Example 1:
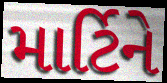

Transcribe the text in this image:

માર્ટિને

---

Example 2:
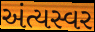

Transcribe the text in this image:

અંત્યસ્વર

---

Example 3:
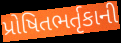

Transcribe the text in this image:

પ્રોષિતભર્તૃકાની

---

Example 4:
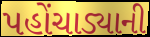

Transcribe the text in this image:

પહોંચાડ્યાની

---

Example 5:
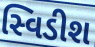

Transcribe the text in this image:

સ્વિડીશ